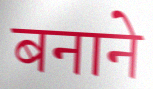
बनाने